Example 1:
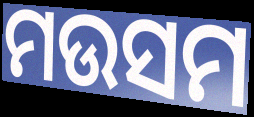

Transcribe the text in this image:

ମଉସମ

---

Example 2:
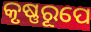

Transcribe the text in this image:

କୃଷ୍ଣରୂପେ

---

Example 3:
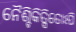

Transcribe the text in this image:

ନୈଶ୍ଚିକିତ୍ସିତୋଽପି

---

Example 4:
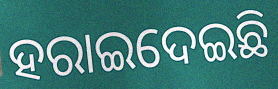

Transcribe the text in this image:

ହରାଇଦେଇଛି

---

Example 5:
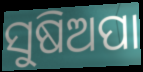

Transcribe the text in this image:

ସୁଷିଅପା